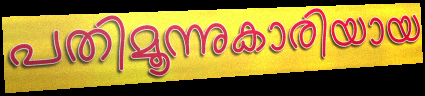
പതിമൂന്നുകാരിയായ